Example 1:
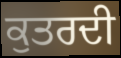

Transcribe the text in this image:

ਕੁਤਰਦੀ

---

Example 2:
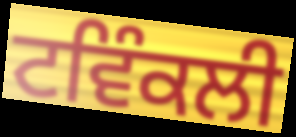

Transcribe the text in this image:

ਟਵਿੰਕਲੀ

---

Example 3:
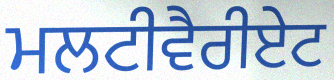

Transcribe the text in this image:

ਮਲਟੀਵੈਰੀਏਟ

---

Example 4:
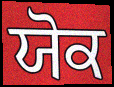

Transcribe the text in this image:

ਯੋਕ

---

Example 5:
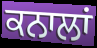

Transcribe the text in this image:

ਕਨਾਲਾਂ